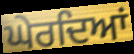
ਘੇਰਦਿਆਂ